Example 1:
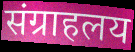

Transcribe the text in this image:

संग्राहलय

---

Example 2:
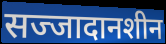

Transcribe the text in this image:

सज्जादानशीन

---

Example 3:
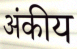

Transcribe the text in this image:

अंकीय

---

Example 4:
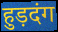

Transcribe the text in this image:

हुड़दंग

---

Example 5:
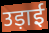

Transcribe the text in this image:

उड़ाई